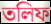
তলিফ